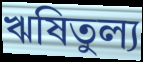
ঋষিতুল্য